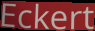
Eckert